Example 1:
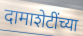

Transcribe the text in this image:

दामाशेटींच्या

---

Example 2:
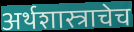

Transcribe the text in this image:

अर्थशास्त्राचेच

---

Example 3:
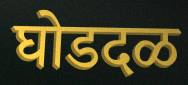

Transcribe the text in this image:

घोडदळ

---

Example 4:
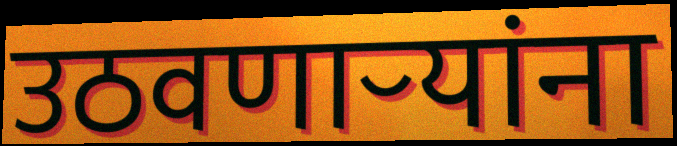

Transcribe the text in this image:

उठवणाऱ्यांना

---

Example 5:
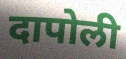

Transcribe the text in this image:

दापोली